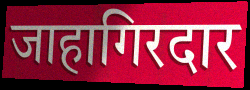
जाहागिरदार